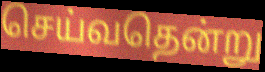
செய்வதென்று